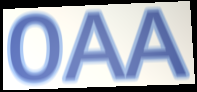
OAA